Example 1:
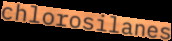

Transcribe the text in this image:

chlorosilanes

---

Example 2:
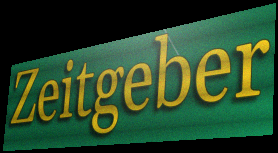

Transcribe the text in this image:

Zeitgeber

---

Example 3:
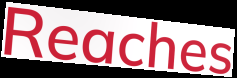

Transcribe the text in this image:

Reaches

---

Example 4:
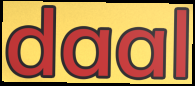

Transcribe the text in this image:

daal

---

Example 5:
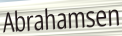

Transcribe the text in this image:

Abrahamsen